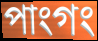
পাংগং